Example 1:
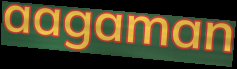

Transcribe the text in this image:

aagaman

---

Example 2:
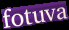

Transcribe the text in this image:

fotuva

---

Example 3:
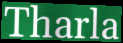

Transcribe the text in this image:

Tharla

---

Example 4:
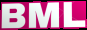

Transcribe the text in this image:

BML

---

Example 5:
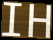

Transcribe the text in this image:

IH